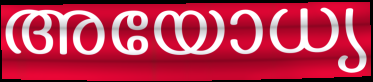
അയോധ്യ